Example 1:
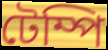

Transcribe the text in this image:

টেম্পি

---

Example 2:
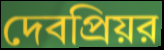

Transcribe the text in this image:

দেবপ্রিয়র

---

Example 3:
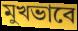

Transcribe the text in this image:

মুখভাবে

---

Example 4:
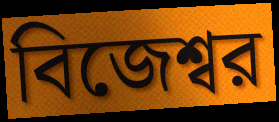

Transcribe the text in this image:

বিজেশ্বর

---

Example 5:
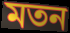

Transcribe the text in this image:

মতন